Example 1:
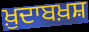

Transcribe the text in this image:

ਖ਼ੁਦਾਬਖ਼ਸ਼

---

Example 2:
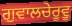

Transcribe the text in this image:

ਗੁਵਾਲਚੇਰੂਵੂ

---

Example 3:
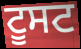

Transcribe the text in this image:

ਟੂਸਟ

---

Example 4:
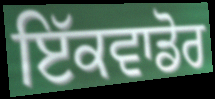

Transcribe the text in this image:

ਇੱਕਵਾਡੋਰ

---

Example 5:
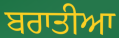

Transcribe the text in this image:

ਬਰਾਤੀਆ